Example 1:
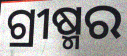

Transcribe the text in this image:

ଗ୍ରୀଷ୍ମର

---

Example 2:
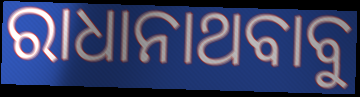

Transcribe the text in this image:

ରାଧାନାଥବାବୁ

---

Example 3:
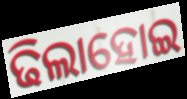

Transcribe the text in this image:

ଢିଲାହୋଇ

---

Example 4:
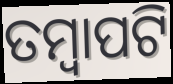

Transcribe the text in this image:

ତମ୍ବାପଟି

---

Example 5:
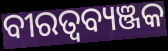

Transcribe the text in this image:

ବୀରତ୍ବବ୍ୟଞ୍ଜକ